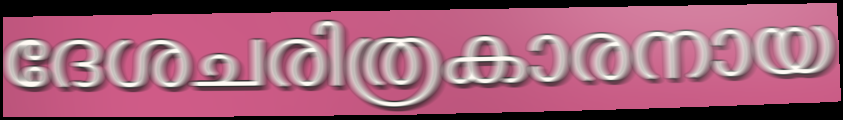
ദേശചരിത്രകാരനായ